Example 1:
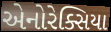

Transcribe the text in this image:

એનોરેક્સિયા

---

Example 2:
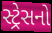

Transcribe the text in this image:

સ્ટ્રેસનો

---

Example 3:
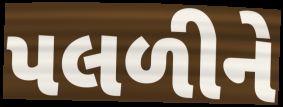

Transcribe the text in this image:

પલળીને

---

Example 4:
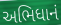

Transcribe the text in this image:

અભિધાનં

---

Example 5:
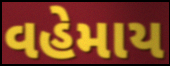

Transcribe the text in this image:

વહેમાય